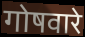
गोषवारे